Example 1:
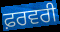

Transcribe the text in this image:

ਫ਼ਰਵਰੀ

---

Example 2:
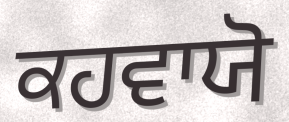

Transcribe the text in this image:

ਕਹਵਾਯੋ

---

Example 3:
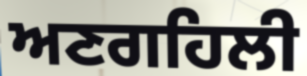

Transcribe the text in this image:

ਅਣਗਹਿਲੀ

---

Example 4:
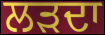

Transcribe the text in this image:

ਲੜਦਾ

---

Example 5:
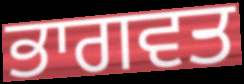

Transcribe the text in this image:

ਭਾਗਵਤ